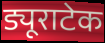
ड्यूराटेक